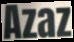
Azaz